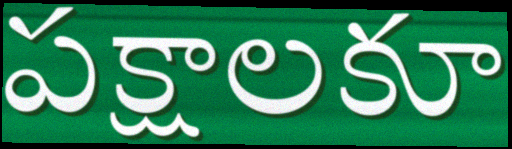
పక్షాలకూ